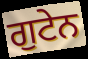
ਗੁਟੇਨ